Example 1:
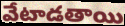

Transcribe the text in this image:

వేటాడతాయి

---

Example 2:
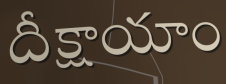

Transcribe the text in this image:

దీక్షాయాం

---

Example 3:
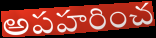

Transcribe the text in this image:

అపహరించ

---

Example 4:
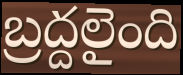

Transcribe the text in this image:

బ్రద్దలైంది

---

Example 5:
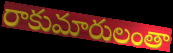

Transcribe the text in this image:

రాకుమారులంతా